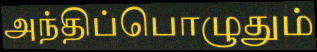
அந்திப்பொழுதும்